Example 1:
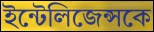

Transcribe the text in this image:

ইন্টেলিজেন্সকে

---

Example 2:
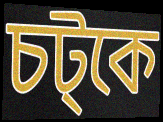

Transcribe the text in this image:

চট্‌কে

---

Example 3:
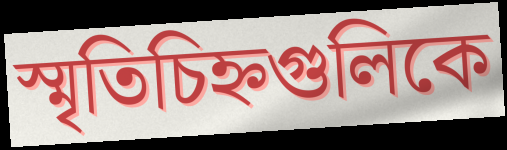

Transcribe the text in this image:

স্মৃতিচিহ্নগুলিকে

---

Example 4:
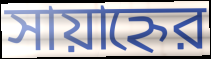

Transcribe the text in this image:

সায়াহ্নের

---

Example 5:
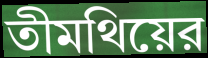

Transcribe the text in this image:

তীমথিয়ের